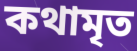
কথামৃত